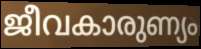
ജീവകാരുണ്യം